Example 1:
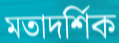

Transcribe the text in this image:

মতাদর্শিক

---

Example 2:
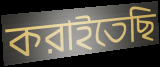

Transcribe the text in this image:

করাইতেছি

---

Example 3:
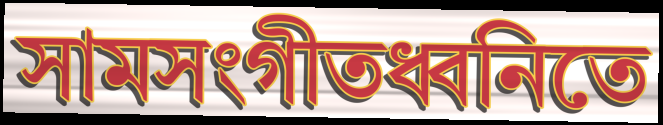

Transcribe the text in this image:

সামসংগীতধ্বনিতে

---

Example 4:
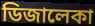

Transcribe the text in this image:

ডিজালেকা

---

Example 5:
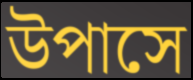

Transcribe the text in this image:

উপাসে